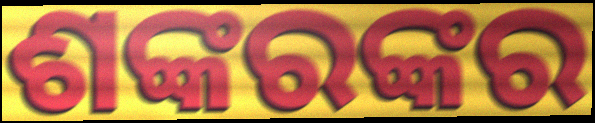
ଶଙ୍କରଙ୍କର